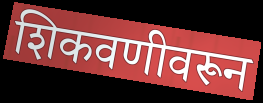
शिकवणीवरून